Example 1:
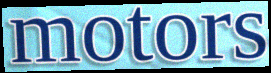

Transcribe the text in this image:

motors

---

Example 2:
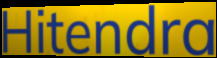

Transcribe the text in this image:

Hitendra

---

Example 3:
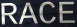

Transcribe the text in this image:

RACE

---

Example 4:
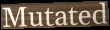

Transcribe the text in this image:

Mutated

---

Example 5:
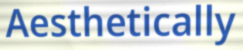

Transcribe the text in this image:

Aesthetically